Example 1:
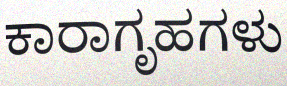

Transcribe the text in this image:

ಕಾರಾಗೃಹಗಳು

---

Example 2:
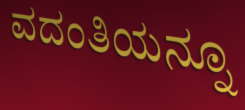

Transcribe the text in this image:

ವದಂತಿಯನ್ನೂ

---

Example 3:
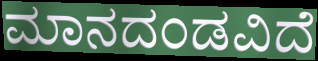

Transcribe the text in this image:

ಮಾನದಂಡವಿದೆ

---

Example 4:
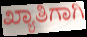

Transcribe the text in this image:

ಖ್ಯಾತಿಗಾಗಿ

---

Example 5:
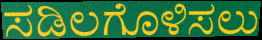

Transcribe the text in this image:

ಸಡಿಲಗೊಳಿಸಲು